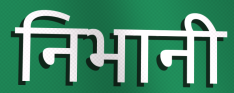
निभानी